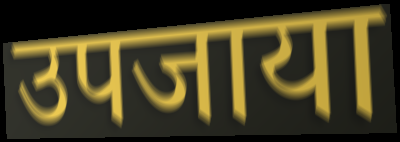
उपजाया